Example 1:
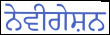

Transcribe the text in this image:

ਨੇਵੀਗੇਸ਼ਨ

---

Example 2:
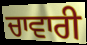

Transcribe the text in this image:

ਚਾਵਾਰੀ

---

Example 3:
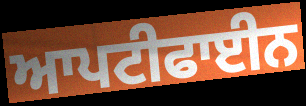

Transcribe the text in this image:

ਆਪਟੀਫਾਈਨ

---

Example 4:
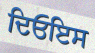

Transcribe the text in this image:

ਦਿਓਇਸ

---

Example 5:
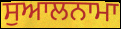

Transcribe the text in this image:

ਸੁਆਲਨਾਮਾ